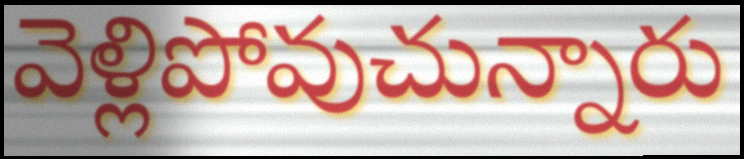
వెళ్లిపోవుచున్నారు